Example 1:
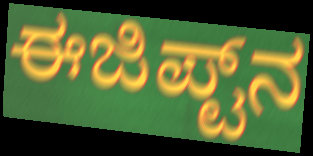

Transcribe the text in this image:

ಈಜಿಪ್ಟ್‌ನ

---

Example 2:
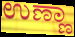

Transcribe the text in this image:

ಉಣ್ಣಾ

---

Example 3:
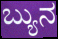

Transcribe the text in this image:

ಬ್ಯುನ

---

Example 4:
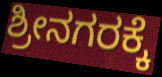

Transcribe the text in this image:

ಶ್ರೀನಗರಕ್ಕೆ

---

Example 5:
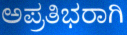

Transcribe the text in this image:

ಅಪ್ರತಿಭರಾಗಿ